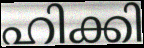
ഹിക്കി